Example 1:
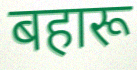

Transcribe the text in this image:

बहारू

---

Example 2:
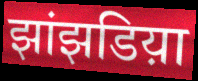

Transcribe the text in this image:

झांझडिय़ा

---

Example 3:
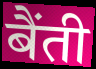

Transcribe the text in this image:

बैंती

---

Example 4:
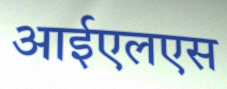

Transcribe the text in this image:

आईएलएस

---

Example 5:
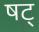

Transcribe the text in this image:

षट्